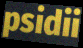
psidii